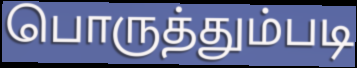
பொருத்தும்படி